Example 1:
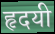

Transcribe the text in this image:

हृदयी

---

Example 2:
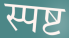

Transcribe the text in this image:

स्पष्ट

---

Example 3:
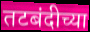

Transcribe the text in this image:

तटबंदीच्या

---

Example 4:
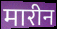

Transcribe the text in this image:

मारीन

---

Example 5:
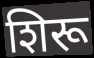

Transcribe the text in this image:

शिरू